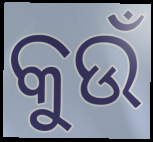
କୁଉଁ